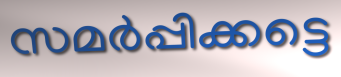
സമർപ്പിക്കട്ടെ